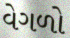
વેગળો